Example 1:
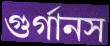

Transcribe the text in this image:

গুর্গানস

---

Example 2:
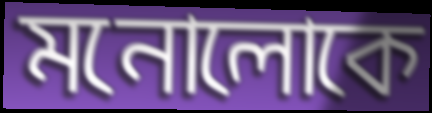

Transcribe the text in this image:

মনোলোকে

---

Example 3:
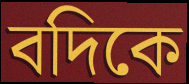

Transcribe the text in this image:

বদিকে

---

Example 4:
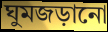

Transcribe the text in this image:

ঘুমজড়ানো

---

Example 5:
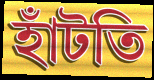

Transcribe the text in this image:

হাঁটতি